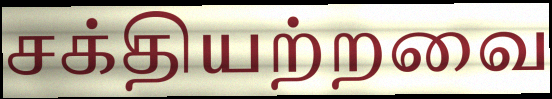
சக்தியற்றவை